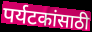
पर्यटकांसाठी